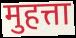
मुहत्ता